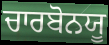
ਚਾਰਬੋਨਯੂ